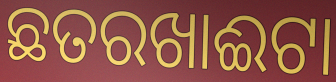
ଛତରଖାଈଟା